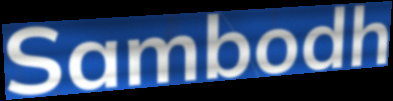
Sambodh